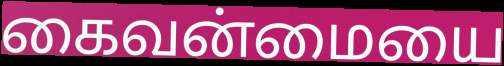
கைவன்மையை